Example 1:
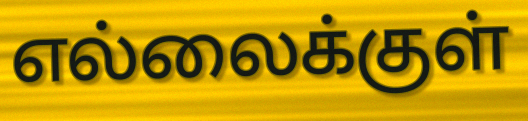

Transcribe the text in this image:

எல்லைக்குள்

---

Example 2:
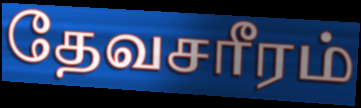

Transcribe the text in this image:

தேவசரீரம்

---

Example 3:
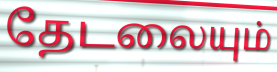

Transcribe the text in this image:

தேடலையும்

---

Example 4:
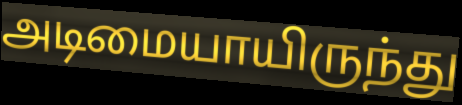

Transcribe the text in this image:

அடிமையாயிருந்து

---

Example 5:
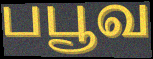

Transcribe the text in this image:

பபூவ